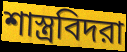
শাস্ত্রবিদরা